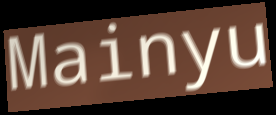
Mainyu